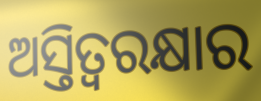
ଅସ୍ତିତ୍ୱରକ୍ଷାର